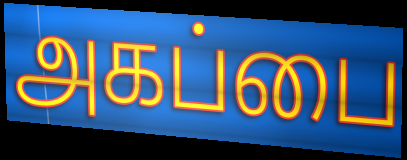
அகப்பை